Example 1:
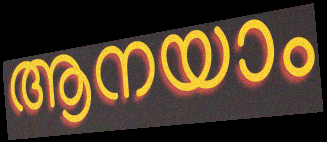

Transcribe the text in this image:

ആനയാം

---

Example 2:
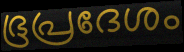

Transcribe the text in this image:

ഭൂപ്രദേശം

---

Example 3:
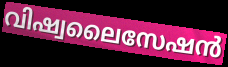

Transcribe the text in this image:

വിഷ്വലൈസേഷൻ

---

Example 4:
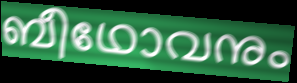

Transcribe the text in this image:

ബീഥോവനും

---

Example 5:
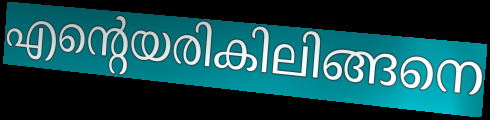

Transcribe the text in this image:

എന്റെയരികിലിങ്ങനെ